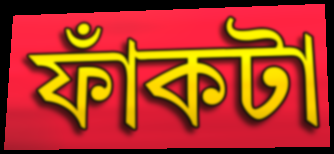
ফাঁকটা